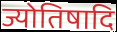
ज्योतिषादि